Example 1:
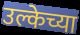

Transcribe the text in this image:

उल्केच्या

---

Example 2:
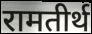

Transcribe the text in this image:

रामतीर्थ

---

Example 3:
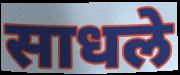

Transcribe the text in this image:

साधले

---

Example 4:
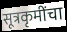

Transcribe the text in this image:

सूत्रकृमींचा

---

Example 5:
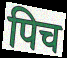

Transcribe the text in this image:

पिच